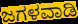
ಜಗಳವಾಡಿ